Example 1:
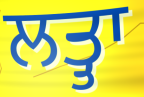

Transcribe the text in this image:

ਲਤ੍ਤਾ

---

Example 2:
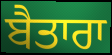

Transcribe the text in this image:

ਬੈਤਾਰਾ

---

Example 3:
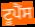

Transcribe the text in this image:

ਟੂਪੈਂਸ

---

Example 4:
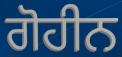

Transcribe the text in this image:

ਗੋਹੀਨ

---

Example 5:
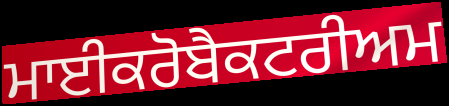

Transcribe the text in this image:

ਮਾਈਕਰੋਬੈਕਟਰੀਅਮ